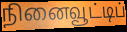
நினைவூட்டிப்